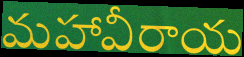
మహావీరాయ